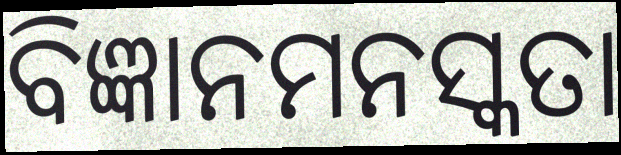
ବିଜ୍ଞାନମନସ୍କତା